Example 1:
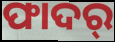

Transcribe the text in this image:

ଫାଦର୍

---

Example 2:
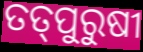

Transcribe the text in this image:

ତତ୍‌ପୁରୁଷୀ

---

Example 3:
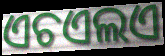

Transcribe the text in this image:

ଏଚଏଲଏ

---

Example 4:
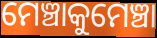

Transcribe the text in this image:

ମେଞ୍ଚାକୁମେଞ୍ଚା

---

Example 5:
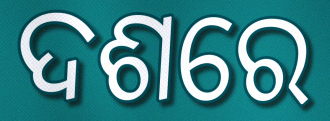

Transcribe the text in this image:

ଦଶରେ